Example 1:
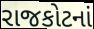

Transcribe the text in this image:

રાજકોટનાં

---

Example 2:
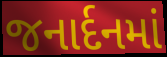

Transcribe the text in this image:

જનાર્દનમાં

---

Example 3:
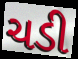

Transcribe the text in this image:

ચડી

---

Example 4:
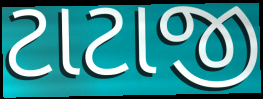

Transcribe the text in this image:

ટાટાજી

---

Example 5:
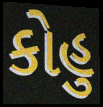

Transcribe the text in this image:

કોહુ